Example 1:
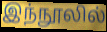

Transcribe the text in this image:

இந்நூலில்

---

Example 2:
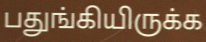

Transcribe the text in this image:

பதுங்கியிருக்க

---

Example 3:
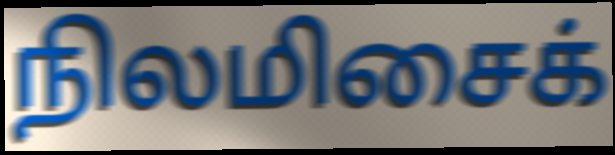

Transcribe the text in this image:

நிலமிசைக்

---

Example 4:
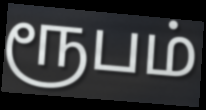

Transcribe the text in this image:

ரூபம்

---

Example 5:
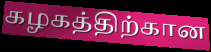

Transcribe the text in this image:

கழகத்திற்கான